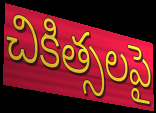
చికిత్సలపై